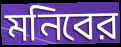
মনিবের